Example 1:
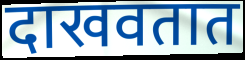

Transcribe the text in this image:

दाखवतात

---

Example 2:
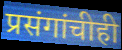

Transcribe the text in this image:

प्रसंगांचीही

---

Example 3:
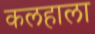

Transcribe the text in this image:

कलहाला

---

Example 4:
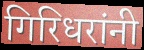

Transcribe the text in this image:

गिरिधरांनी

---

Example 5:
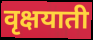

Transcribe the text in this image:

वृक्षयाती